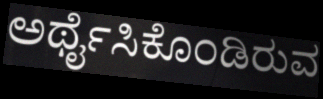
ಅರ್ಥೈಸಿಕೊಂಡಿರುವ